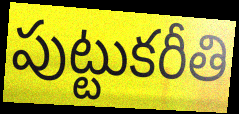
పుట్టుకరీతి